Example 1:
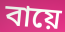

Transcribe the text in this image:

বায়ে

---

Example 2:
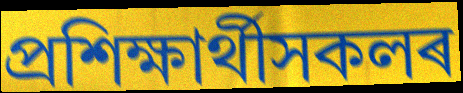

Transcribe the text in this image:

প্ৰশিক্ষাৰ্থীসকলৰ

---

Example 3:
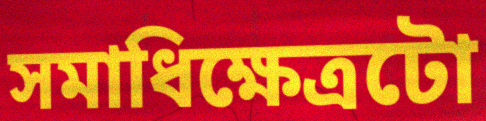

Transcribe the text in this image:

সমাধিক্ষেত্ৰটো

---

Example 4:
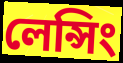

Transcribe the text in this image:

লেন্সিং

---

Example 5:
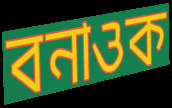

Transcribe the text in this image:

বনাওক